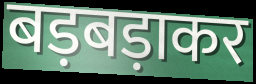
बड़बड़ाकर